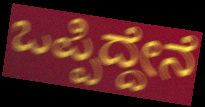
ಒಪ್ಪಿದ್ದೇನೆ